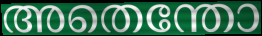
അതെന്തോ